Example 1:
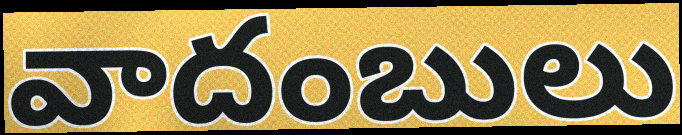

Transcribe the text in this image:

వాదంబులు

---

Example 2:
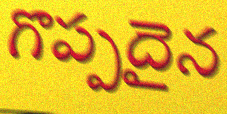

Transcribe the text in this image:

గొప్పదైన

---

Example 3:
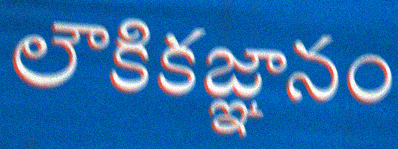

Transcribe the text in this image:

లౌకికజ్ఞానం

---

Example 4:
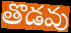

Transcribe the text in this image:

తొడవు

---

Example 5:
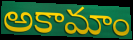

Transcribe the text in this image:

అకామాం